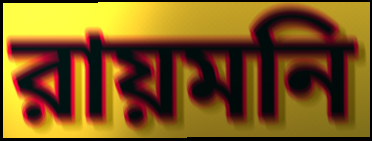
রায়মনি